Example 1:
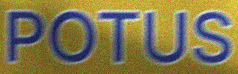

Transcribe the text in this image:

POTUS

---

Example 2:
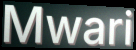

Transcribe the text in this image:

Mwari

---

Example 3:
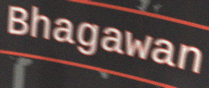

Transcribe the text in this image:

Bhagawan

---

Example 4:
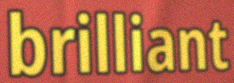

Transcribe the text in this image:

brilliant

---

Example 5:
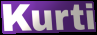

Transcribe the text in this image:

Kurti